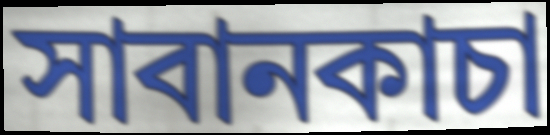
সাবানকাচা